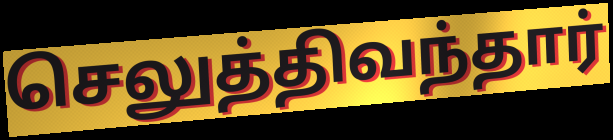
செலுத்திவந்தார்